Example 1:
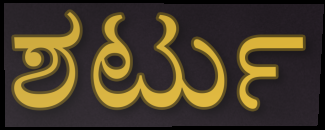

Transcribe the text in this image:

ಶರ್ಟು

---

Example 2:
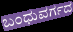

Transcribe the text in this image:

ಬಂಧುವರ್ಗದ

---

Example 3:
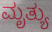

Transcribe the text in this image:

ಮೃತ್ಯು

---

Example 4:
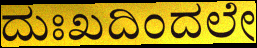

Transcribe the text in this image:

ದುಃಖದಿಂದಲೇ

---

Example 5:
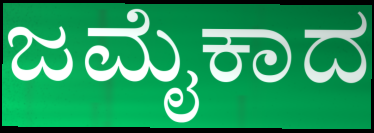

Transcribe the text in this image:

ಜಮೈಕಾದ